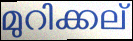
മുറിക്കല്